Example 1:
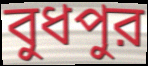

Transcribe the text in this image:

বুধপুর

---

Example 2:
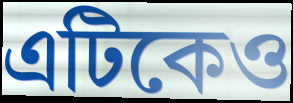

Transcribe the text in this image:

এটিকেও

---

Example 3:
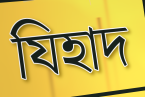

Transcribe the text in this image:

যিহাদ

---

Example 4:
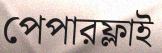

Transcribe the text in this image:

পেপারফ্লাই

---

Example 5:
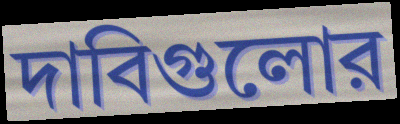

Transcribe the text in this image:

দাবিগুলোর